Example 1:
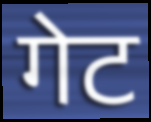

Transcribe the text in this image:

गेट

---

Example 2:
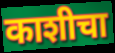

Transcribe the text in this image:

काशीचा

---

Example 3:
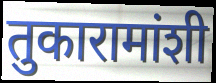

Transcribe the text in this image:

तुकारामांशी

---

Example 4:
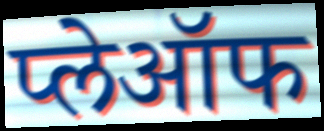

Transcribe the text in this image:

प्लेऑफ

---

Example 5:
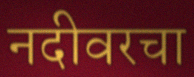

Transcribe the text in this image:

नदीवरचा